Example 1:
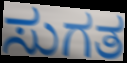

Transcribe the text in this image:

ಸುಗತ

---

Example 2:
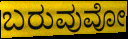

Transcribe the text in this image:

ಬರುವುವೋ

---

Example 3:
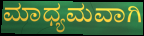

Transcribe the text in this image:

ಮಾಧ್ಯಮವಾಗಿ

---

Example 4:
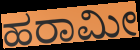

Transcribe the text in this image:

ಹರಾಮೀ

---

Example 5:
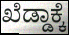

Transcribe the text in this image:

ಖೆಡ್ಡಾಕ್ಕೆ